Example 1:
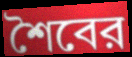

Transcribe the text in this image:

শৈবের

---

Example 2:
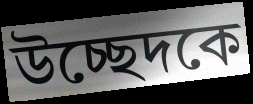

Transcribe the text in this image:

উচ্ছেদকে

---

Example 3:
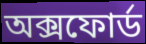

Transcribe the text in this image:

অক্সফোর্ড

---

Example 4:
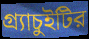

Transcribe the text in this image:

গ্র্যাচুইটির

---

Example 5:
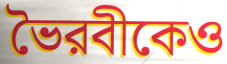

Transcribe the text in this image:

ভৈরবীকেও